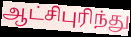
ஆட்சிபுரிந்து